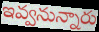
ఇవ్వనున్నారు